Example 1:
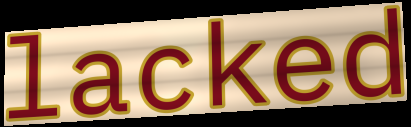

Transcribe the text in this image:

lacked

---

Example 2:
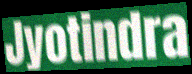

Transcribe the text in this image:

Jyotindra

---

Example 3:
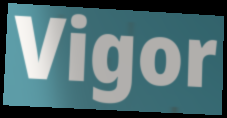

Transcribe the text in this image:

Vigor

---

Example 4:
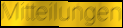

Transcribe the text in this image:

Mitteilungen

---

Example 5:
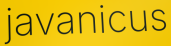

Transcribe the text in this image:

javanicus